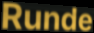
Runde